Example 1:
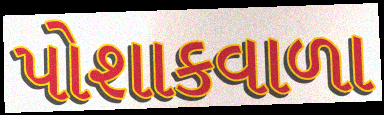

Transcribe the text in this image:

પોશાકવાળા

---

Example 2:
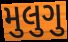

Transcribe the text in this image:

મુલુગુ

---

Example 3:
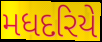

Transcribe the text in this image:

મધદરિયે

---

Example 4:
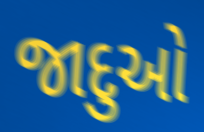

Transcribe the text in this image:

જાદુઓ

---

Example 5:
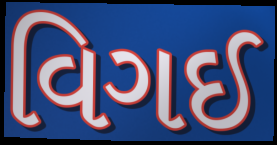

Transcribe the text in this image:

વિગઈ